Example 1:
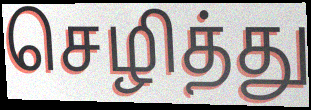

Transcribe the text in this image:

செழித்து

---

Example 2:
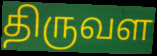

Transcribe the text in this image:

திருவள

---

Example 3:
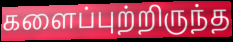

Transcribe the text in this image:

களைப்புற்றிருந்த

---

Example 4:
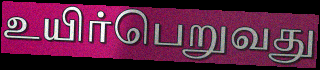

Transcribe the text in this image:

உயிர்பெறுவது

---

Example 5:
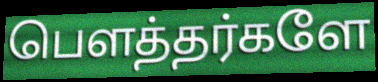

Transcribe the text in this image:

பௌத்தர்களே